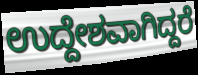
ಉದ್ದೇಶವಾಗಿದ್ದರೆ